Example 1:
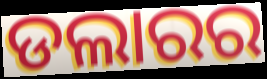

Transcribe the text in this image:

ଡଲାରର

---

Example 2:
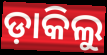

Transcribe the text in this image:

ଡ଼ାକିଲୁ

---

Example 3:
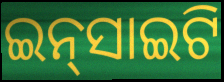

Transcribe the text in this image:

ଇନ୍‌ସାଇଟି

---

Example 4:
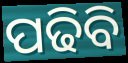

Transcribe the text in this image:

ପଢିବି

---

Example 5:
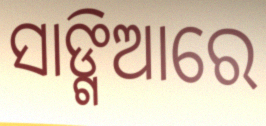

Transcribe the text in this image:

ସାଙ୍ଗିଆରେ